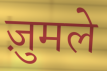
ज़ुमले